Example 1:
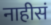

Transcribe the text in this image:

नाहीसं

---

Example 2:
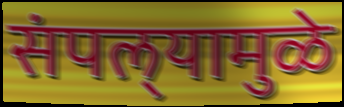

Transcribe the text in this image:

संपल्यामुळे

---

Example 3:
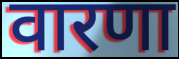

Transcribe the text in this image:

वारणा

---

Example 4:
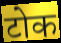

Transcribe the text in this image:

टोक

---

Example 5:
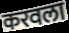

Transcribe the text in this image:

करवला